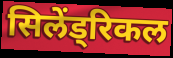
सिलेंड्रिकल